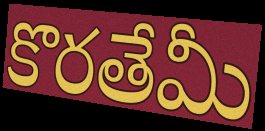
కొరతేమీ